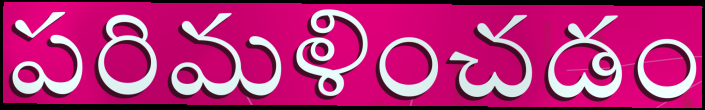
పరిమళించడం